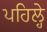
ਪਹਿਲ੍ਹੇ